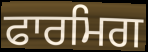
ਫਾਰਮਿਗ